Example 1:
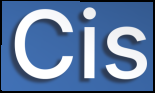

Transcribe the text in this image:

Cis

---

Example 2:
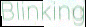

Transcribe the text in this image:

Blinking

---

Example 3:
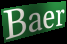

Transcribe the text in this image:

Baer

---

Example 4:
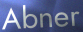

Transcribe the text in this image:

Abner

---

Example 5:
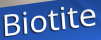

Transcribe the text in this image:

Biotite